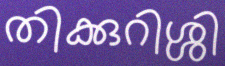
തിക്കുറിശ്ശി